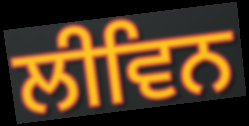
ਲੀਵਿਨ